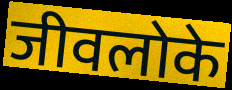
जीवलोके